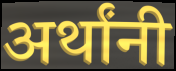
अर्थांनी